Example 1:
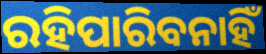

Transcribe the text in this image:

ରହିପାରିବନାହିଁ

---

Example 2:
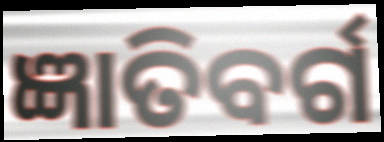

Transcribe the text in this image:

ଜ୍ଞାତିବର୍ଗ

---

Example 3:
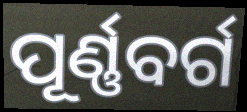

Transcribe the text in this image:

ପୂର୍ଣ୍ଣବର୍ଗ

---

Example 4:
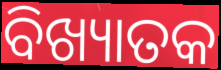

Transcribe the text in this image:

ବିଖ୍ୟାତକ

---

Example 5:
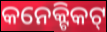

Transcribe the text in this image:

କନେକ୍ଟିକଟ୍